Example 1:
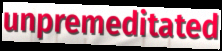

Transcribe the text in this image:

unpremeditated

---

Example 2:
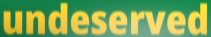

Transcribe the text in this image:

undeserved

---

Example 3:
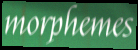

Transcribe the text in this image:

morphemes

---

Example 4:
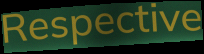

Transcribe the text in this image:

Respective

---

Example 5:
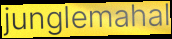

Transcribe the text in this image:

junglemahal